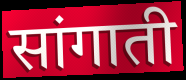
सांगाती